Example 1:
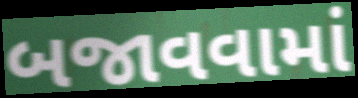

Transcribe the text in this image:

બજાવવામાં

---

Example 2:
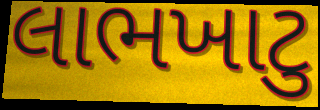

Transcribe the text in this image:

લાભખાટુ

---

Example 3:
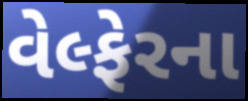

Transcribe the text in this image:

વેલ્ફેરના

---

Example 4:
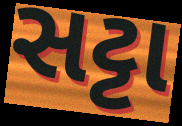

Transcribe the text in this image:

સટ્ટા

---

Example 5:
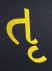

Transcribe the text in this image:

તૃ